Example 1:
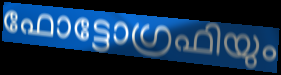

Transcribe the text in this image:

ഫോട്ടോഗ്രഫിയും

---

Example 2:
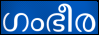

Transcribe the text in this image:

ഗംഭീര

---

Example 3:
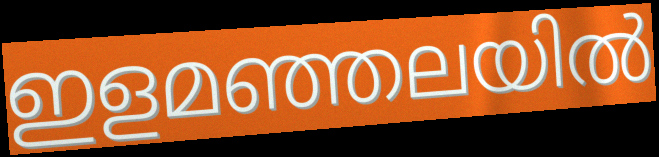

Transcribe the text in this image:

ഇളമഞ്ഞലയിൽ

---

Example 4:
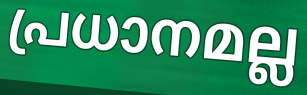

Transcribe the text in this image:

പ്രധാനമല്ല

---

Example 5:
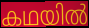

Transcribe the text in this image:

കഥയിൽ